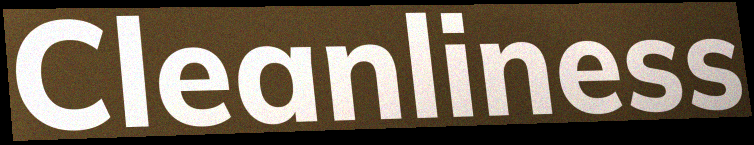
Cleanliness